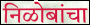
निळोबांचा